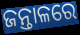
ଜନ୍ତାଳରେ